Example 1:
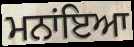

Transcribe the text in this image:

ਮਨਾਂਇਆ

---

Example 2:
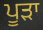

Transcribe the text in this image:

ਪੂੜਾ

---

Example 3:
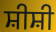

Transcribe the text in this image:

ਸ਼ੀਸ਼ੀ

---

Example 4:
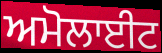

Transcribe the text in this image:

ਅਮੋਲਾਈਟ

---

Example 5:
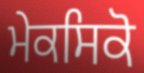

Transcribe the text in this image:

ਮੇਕਸਿਕੋ